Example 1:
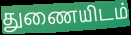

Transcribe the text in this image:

துணையிடம்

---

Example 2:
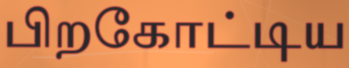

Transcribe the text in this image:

பிறகோட்டிய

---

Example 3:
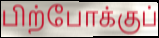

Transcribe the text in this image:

பிற்போக்குப்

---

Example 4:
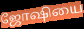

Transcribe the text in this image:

ஜோஷியை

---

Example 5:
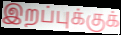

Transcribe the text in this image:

இறப்புக்குக்